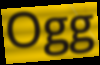
Ogg